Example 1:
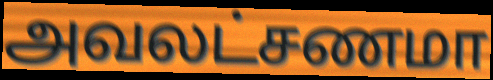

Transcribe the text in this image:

அவலட்சணமா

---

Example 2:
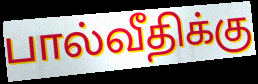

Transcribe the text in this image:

பால்வீதிக்கு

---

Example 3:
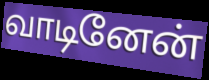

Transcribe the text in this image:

வாடினேன்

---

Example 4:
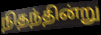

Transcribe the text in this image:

நிதந்தின்று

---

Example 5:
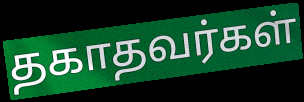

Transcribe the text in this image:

தகாதவர்கள்